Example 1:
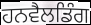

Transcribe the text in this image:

ਹਨਵੈਲਡਿੰਗ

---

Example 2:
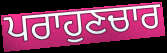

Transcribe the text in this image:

ਪਰਾਹੁਣਚਾਰ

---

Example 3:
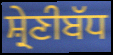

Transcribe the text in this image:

ਸ਼੍ਰੇਣੀਬੱਧ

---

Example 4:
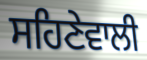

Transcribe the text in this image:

ਸਹਿਣੇਵਾਲੀ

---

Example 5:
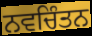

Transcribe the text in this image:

ਨਵਚਿੰਤਨ